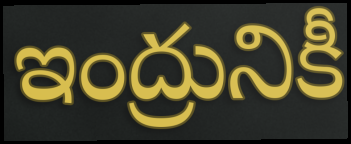
ఇంద్రునికీ